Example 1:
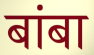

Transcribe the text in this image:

बांबा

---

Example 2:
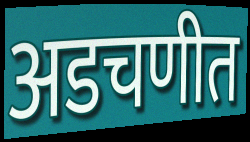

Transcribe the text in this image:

अडचणीत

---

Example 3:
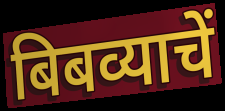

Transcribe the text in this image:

बिबव्याचें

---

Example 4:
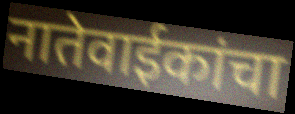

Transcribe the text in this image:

नातेवाईकांचा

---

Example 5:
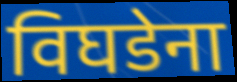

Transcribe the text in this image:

विघडेना